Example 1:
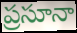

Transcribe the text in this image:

ప్రసూనా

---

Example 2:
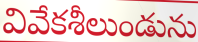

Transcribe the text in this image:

వివేకశీలుండును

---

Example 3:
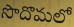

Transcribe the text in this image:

సొదొమలో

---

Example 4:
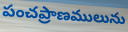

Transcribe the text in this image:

పంచప్రాణములును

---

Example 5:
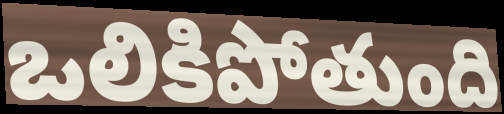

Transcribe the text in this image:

ఒలికిపోతుంది